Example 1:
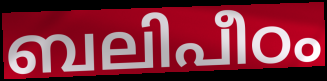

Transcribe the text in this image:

ബലിപീഠം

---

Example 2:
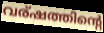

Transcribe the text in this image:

വര്ഷത്തിന്റെ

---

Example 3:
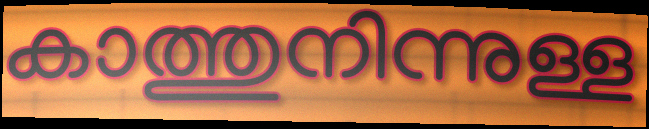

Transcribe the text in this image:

കാത്തുനിന്നുള്ള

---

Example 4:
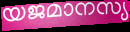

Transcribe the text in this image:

യജമാനസ്യ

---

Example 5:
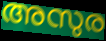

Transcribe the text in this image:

അസുര